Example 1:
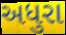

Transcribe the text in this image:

અધુરા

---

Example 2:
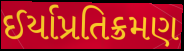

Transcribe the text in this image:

ઈર્યાપ્રતિક્રમણ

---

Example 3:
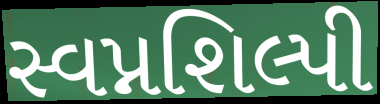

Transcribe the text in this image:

સ્વપ્નશિલ્પી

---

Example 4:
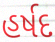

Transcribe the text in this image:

હર્ષદ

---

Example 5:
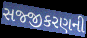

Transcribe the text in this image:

સજ્જીકરણની